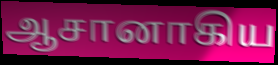
ஆசானாகிய